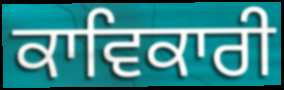
ਕਾਵਿਕਾਰੀ